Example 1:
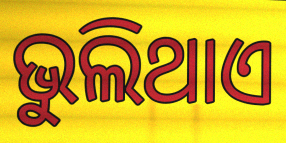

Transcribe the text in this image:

ଭୁଲିଥାଏ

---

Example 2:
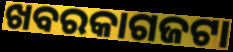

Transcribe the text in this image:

ଖବରକାଗଜଟା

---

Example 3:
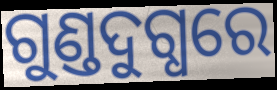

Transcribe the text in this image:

ଗୁଣ୍ଡଦୁଗ୍ଧରେ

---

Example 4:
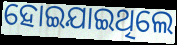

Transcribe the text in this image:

ହୋଇଯାଇଥିଲେ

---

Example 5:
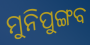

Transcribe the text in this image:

ମୁନିପୁଙ୍ଗବ